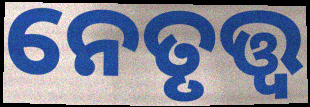
ନେତୃତ୍ତ୍ୱ